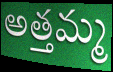
అత్తమ్మ